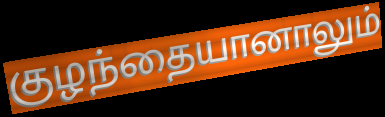
குழந்தையானாலும்